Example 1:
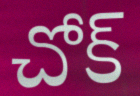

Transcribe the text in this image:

చోక్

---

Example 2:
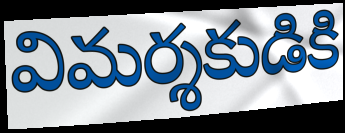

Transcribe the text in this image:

విమర్శకుడికి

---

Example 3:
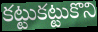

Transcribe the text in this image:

కట్టుకట్టుకొని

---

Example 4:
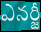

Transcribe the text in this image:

ఎనర్జీ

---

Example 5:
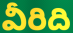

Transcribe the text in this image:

వీరిది